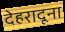
देहरादूना